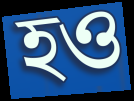
হও